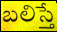
బలిస్తే